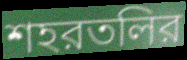
শহরতলির